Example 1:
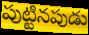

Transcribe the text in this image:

పుట్టినపుడు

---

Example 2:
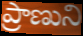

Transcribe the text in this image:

ప్రాణుని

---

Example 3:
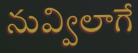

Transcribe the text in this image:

నువ్విలాగే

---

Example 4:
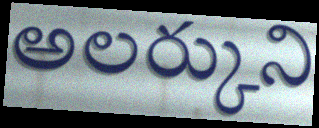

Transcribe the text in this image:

అలర్కుని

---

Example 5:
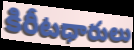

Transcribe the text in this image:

కిరీటధారులు